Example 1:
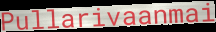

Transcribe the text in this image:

Pullarivaanmai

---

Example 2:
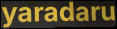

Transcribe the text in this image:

yaradaru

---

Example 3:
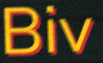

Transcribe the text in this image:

Biv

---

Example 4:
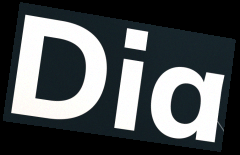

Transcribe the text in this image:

Dia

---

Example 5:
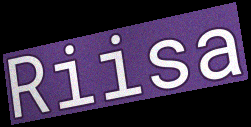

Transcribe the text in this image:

Riisa